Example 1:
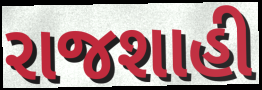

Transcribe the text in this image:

રાજશાહી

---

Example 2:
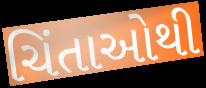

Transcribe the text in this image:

ચિંતાઓથી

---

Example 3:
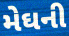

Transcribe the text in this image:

મેઘની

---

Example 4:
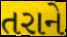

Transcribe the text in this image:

તરાને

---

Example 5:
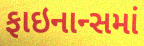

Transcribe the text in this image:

ફાઇનાન્સમાં